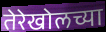
तेरेखोलच्या